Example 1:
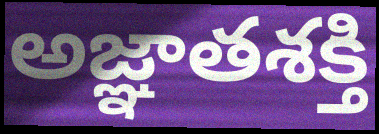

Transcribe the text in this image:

అజ్ఞాతశక్తి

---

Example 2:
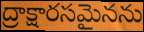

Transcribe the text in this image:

ద్రాక్షారసమైనను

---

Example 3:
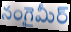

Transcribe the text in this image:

నంగైమీర్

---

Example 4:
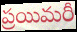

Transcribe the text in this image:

ప్రయిమరీ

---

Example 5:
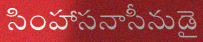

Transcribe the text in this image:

సింహాసనాసీనుడై